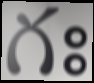
గః